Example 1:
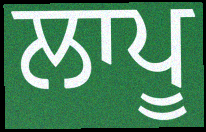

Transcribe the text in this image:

ਲਾਪੂ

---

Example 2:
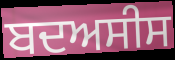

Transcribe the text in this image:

ਬਦਅਸੀਸ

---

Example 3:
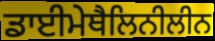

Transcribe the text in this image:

ਡਾਈਮੇਥੈਲਿਨੀਲੀਨ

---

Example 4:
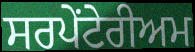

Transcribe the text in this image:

ਸਰਪੇਂਟੇਰੀਅਮ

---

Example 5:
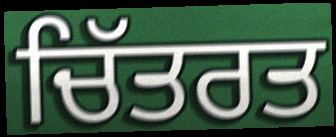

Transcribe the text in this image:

ਚਿੱਤਰਤ